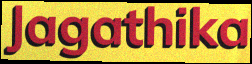
Jagathika